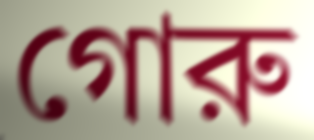
গোরু